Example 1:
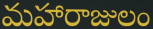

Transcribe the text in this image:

మహారాజులం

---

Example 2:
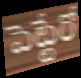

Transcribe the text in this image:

పెట్టేరో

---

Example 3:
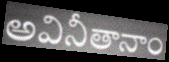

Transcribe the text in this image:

అవినీతానాం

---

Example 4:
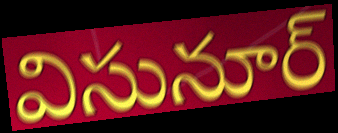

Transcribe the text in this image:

విసునూర్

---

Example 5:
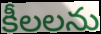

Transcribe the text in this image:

కీలలను